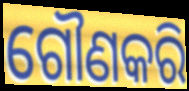
ଗୌଣକରି